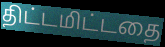
திட்டமிட்டதை